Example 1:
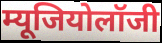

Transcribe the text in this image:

म्यूजियोलॉजी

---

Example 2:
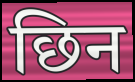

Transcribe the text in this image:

छिन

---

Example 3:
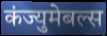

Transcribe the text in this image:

कंज्युमेबल्स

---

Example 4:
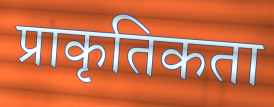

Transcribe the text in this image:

प्राकृतिकता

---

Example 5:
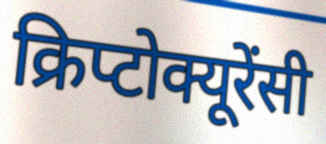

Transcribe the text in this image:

क्रिप्टोक्यूरेंसी